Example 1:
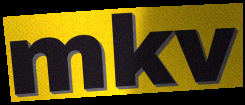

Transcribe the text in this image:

mkv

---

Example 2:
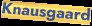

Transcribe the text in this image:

Knausgaard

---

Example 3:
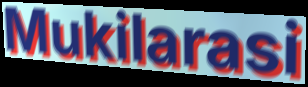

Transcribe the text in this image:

Mukilarasi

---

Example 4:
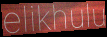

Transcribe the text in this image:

elikhulu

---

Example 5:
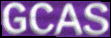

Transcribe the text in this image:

GCAS